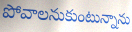
పోవాలనుకుంటున్నాను